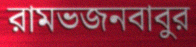
রামভজনবাবুর